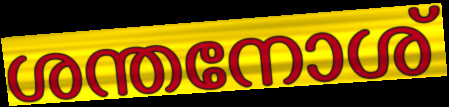
ശന്തനോശ്